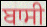
ਬਾਸੀ